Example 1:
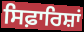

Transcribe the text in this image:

ਸਿਫ਼ਾਰਿਸ਼ਾਂ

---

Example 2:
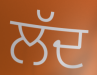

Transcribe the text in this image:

ਲੱਦ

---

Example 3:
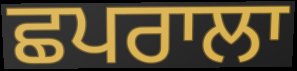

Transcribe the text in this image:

ਛਪਰਾਲਾ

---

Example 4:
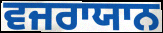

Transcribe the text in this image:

ਵਜਰਾਯਾਨ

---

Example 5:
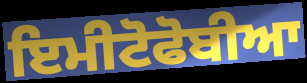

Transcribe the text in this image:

ਇਮੀਟੋਫੋਬੀਆ